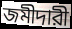
জমীদারী